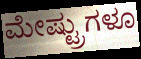
ಮೇಷ್ಟ್ರುಗಳೂ